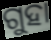
ଗୁହା